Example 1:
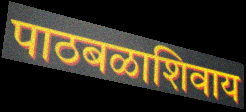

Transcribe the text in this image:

पाठबळाशिवाय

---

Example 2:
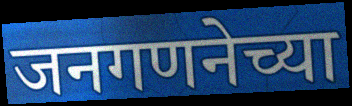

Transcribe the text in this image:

जनगणनेच्या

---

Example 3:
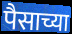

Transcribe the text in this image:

पैसाच्या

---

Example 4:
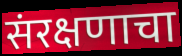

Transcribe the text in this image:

संरक्षणाचा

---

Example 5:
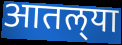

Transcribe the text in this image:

आतल्या